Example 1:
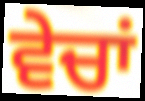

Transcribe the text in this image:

ਵੇਚਾਂ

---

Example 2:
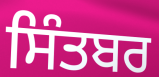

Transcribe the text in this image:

ਸਿੰਤਬਰ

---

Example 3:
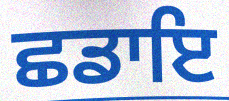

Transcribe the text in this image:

ਛਡਾਇ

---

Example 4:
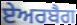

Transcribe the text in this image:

ਏਅਰਬੈਗ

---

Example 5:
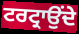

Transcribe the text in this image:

ਟਰਟ੍ਰਾਉਂਦੇ